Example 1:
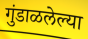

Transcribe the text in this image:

गुंडाळलेल्या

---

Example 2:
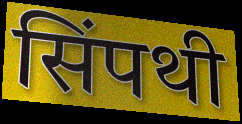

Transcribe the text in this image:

सिंपथी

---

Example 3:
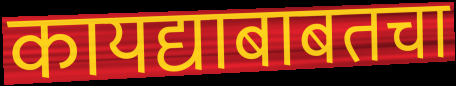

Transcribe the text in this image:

कायद्याबाबतचा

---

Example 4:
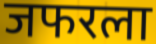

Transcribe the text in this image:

जफरला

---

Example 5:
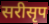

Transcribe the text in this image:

सरीसृप